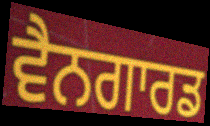
ਵੈਨਗਾਰਡ